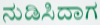
ನುಡಿಸಿದಾಗ